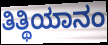
ತಿತ್ಥಿಯಾನಂ